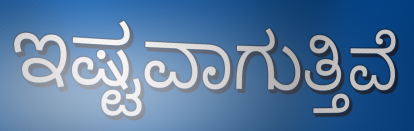
ಇಷ್ಟವಾಗುತ್ತಿವೆ